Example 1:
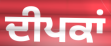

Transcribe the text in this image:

ਦੀਪਕਾਂ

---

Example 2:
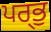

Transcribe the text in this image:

ਪਰ੍ਭੁ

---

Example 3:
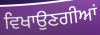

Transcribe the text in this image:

ਵਿਖਾਉਣਗੀਆਂ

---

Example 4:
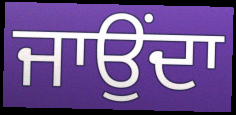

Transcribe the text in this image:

ਜਾਉਂਦਾ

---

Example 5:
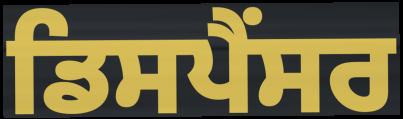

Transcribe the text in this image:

ਡਿਸਪੈਂਸਰ